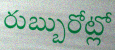
రుబ్బురోట్లో